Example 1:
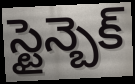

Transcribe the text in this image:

స్టైన్బెక్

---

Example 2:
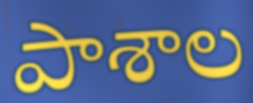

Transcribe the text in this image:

పాశాల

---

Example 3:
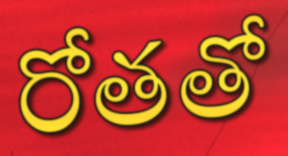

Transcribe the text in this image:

రోతతో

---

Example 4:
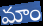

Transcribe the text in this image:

మాం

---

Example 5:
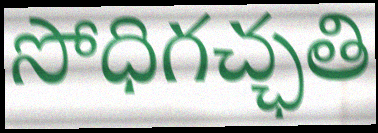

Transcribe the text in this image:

సోధిగచ్ఛతి